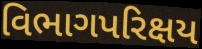
વિભાગપરિક્ષય